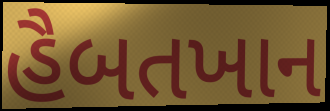
હૈબતખાન